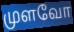
முளவோ